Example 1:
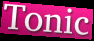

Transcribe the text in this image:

Tonic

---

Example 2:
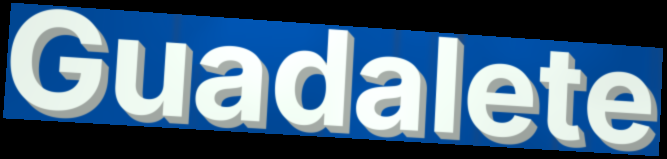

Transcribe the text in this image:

Guadalete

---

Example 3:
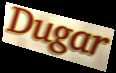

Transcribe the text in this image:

Dugar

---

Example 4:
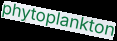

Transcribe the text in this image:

phytoplankton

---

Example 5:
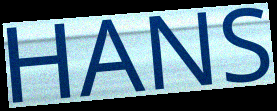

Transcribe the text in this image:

HANS